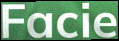
Facie